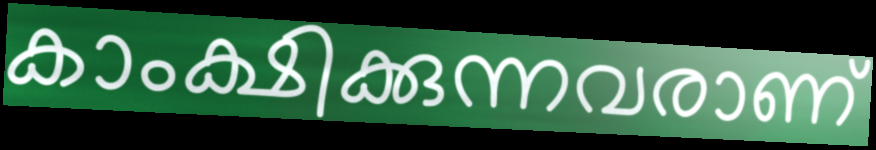
കാംക്ഷിക്കുന്നവരാണ്